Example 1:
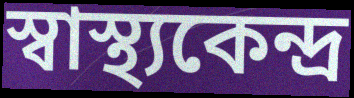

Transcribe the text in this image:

স্বাস্থ্যকেন্দ্র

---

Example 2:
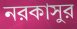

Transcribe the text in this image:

নরকাসুর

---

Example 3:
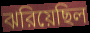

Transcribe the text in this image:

ঝরিয়েছিল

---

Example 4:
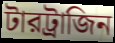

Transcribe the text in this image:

টারট্রাজিন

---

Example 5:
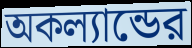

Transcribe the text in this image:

অকল্যান্ডের